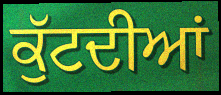
ਕੁੱਟਦੀਆਂ